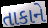
તાકાને